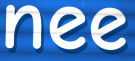
nee